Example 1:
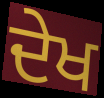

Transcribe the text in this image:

ਦੇਖ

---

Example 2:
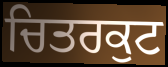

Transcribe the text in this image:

ਚਿਤਰਕੁਟ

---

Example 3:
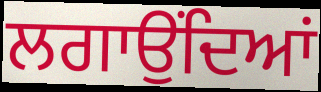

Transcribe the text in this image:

ਲਗਾਉਂਦਿਆਂ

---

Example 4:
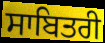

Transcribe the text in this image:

ਸਾਬਿਤਰੀ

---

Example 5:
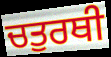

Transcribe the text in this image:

ਚਤੁਰਥੀ